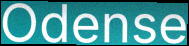
Odense